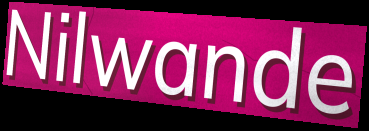
Nilwande